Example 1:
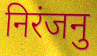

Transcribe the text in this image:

निरंजनु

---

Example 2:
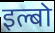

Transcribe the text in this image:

इल्बो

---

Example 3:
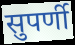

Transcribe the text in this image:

सुपर्णी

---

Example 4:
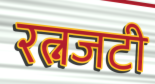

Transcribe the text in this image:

रत्नजटी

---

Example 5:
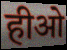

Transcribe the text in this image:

हीओ